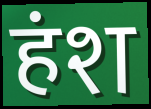
हंश